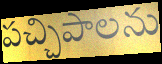
పచ్చిపాలను